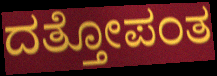
ದತ್ತೋಪಂತ